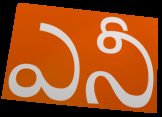
ఎనీ